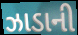
ઝાડાની